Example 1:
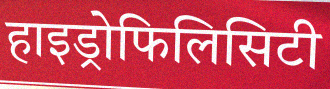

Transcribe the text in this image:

हाइड्रोफिलिसिटी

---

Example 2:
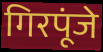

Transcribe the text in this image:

गिरपूंजे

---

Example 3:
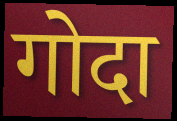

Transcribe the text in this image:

गोदा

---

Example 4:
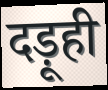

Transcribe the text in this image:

दड़ूही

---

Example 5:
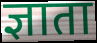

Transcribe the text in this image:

ज्ञाता